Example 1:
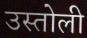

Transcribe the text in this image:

उस्तोली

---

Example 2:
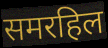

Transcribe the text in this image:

समरहिल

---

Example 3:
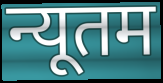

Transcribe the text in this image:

न्यूतम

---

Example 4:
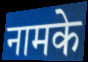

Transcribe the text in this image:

नामके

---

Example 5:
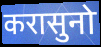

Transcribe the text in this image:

करासुनो